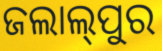
ଜଲାଲ୍‍ପୁର